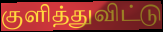
குளித்துவிட்டு